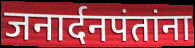
जनार्दनपंतांना